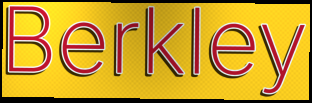
Berkley